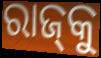
ରାଜ୍‍କୁ